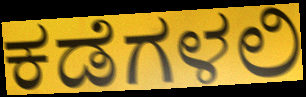
ಕಡೆಗಳಲಿ